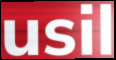
usil